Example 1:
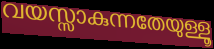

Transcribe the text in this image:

വയസ്സാകുന്നതേയുള്ളൂ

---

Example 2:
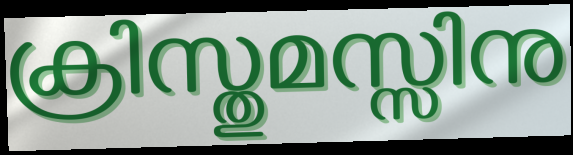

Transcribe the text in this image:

ക്രിസ്തുമസ്സിനു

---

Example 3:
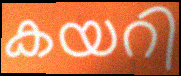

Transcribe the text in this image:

കയറി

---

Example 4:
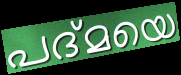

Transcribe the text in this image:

പദ്മയെ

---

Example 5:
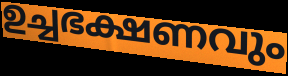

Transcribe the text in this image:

ഉച്ചഭക്ഷണവും